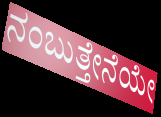
ನಂಬುತ್ತೇನೆಯೇ